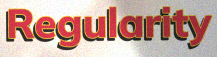
Regularity